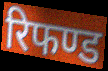
रिफण्ड